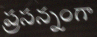
ప్రసన్నంగా